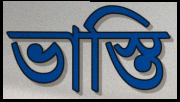
ভাস্তি